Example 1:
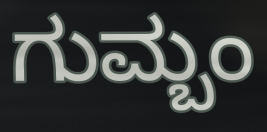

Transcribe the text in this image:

ಗುಮ್ಬಂ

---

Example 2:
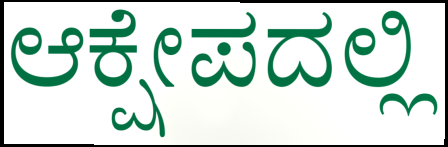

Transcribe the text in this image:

ಆಕ್ಷೇಪದಲ್ಲಿ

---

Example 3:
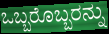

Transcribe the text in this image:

ಒಬ್ಬರೊಬ್ಬರನ್ನು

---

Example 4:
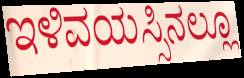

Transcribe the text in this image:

ಇಳಿವಯಸ್ಸಿನಲ್ಲೂ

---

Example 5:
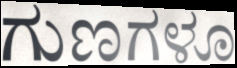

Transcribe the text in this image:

ಗುಣಗಳೂ